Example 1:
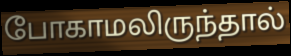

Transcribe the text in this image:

போகாமலிருந்தால்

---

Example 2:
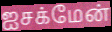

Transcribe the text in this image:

ஐசக்மேன்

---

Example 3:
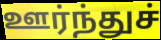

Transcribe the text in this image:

ஊர்ந்துச்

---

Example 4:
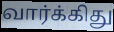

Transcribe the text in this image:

வார்க்கிது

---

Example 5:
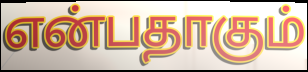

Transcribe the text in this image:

என்பதாகும்